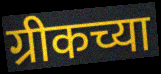
ग्रीकच्या